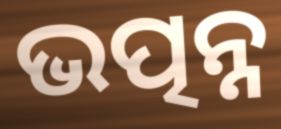
ଭତ୍ପନ୍ନ